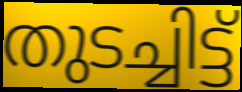
തുടച്ചിട്ട്